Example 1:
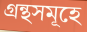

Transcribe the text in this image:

গ্ৰন্থসমূহে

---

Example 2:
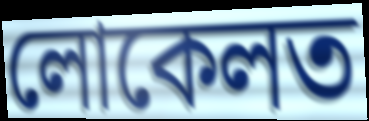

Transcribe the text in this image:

লোকেলত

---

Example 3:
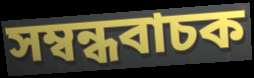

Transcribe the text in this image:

সম্বন্ধবাচক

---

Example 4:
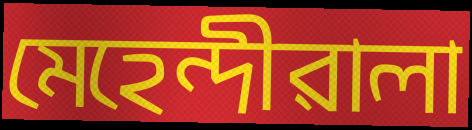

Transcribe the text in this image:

মেহেন্দীৱালা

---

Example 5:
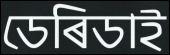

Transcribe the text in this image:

ডেৰিডাই